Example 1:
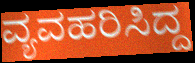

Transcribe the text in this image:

ವ್ಯವಹರಿಸಿದ್ದ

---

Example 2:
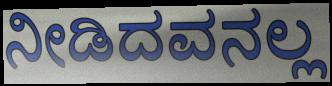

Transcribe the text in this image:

ನೀಡಿದವನಲ್ಲ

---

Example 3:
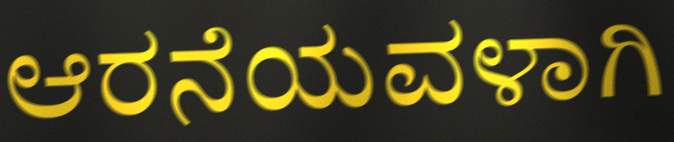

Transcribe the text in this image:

ಆರನೆಯವಳಾಗಿ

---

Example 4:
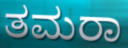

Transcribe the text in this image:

ತಮರಾ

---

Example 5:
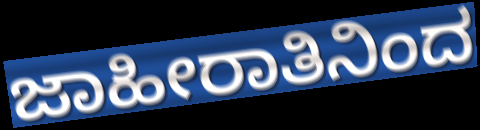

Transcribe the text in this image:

ಜಾಹೀರಾತಿನಿಂದ